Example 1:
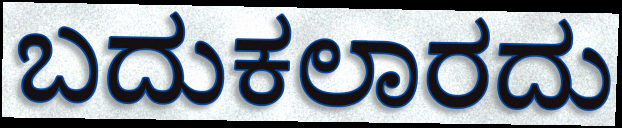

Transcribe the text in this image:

ಬದುಕಲಾರದು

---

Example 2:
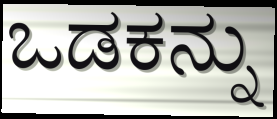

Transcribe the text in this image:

ಒಡಕನ್ನು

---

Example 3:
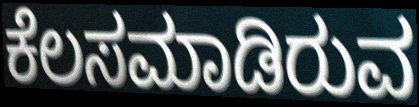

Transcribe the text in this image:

ಕೆಲಸಮಾಡಿರುವ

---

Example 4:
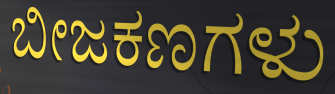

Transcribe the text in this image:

ಬೀಜಕಣಗಳು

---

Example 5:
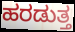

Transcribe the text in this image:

ಹರಡುತ್ತ